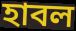
হাবল